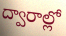
ద్వారాల్లో